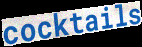
cocktails